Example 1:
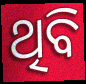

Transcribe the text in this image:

ଥିବି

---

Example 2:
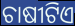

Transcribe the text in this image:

ଚାଷୀଟିଏ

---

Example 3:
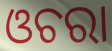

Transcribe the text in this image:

ଓଚରା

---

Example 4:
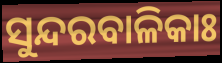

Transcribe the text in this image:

ସୁନ୍ଦରବାଳିକାଃ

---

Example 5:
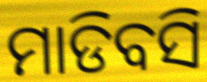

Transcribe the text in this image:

ମାଡିବସି